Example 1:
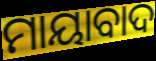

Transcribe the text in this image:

ମାୟାବାଦ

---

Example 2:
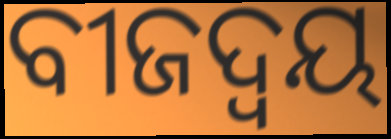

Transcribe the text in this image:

ବୀଜଦ୍ଵୟ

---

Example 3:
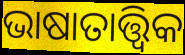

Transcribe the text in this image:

ଭାଷାତାତ୍ତ୍ୱିକ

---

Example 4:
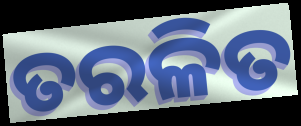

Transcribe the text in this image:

ତରଳିତ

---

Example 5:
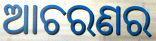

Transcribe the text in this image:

ଆଚରଣର